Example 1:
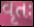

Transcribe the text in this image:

વૃતઃ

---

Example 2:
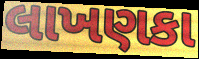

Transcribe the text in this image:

લાખણકા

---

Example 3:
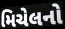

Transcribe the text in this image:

મિચેલનો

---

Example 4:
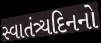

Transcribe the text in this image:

સ્વાતંત્ર્યદિનનો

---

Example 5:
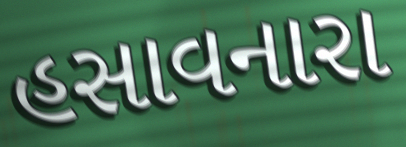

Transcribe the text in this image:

હસાવનારા